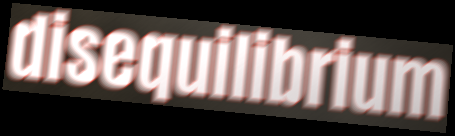
disequilibrium